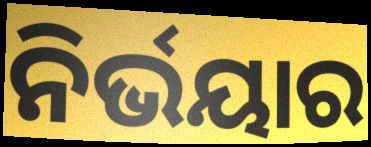
ନିର୍ଭୟାର